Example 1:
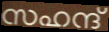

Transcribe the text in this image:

സഹന്ദ്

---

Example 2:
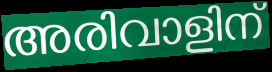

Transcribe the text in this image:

അരിവാളിന്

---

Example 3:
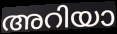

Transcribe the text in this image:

അറിയാ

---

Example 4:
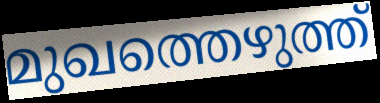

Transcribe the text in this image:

മുഖത്തെഴുത്ത്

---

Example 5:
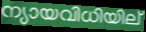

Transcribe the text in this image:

ന്യായവിധിയില്